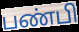
பண்பி